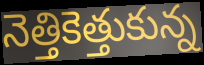
నెత్తికెత్తుకున్న